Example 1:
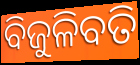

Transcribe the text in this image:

ବିଜୁଳିବତି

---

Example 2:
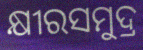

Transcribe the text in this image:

କ୍ଷୀରସମୁଦ୍ର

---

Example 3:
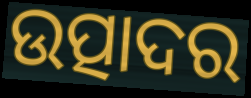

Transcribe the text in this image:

ଉତ୍ପାଦର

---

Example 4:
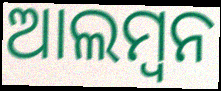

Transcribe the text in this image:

ଆଲମ୍ୱନ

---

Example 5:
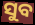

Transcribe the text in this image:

ସୁବ